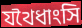
যথৈধাংসি